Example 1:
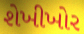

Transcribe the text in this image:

શેખીખોર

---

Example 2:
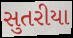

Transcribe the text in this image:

સુતરીયા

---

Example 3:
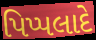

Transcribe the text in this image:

પિપ્પલાદે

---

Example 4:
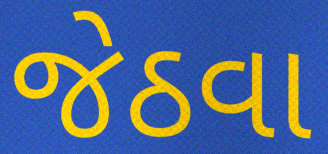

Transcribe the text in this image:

જેઠવા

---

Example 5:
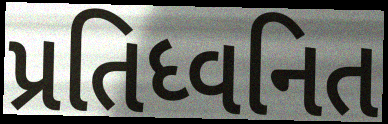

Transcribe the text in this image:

પ્રતિધ્વનિત